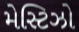
મેસ્ટિઝો